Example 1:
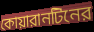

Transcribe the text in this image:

কোয়ারানটিনের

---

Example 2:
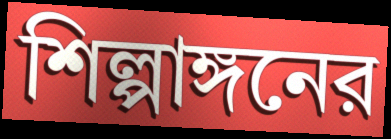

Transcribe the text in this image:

শিল্পাঙ্গনের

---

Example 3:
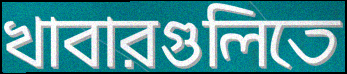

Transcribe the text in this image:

খাবারগুলিতে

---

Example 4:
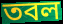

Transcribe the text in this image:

তবল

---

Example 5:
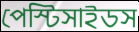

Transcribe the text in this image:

পেস্টিসাইডস